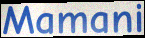
Mamani